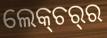
ଲେକ୍‌ଚର୍‌ର